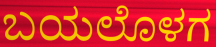
ಬಯಲೊಳಗ